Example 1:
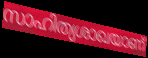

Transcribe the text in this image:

സാഹിത്യശാഖയാണ്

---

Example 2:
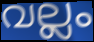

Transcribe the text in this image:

വല്ലം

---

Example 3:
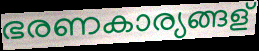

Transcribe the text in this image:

ഭരണകാര്യങ്ങള്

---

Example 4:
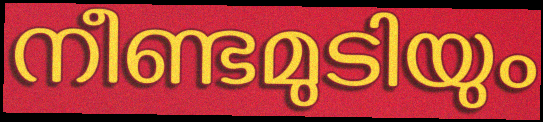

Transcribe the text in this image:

നീണ്ടമുടിയും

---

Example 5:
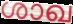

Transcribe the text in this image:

ശാഖ